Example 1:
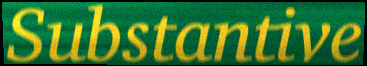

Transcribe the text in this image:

Substantive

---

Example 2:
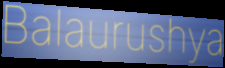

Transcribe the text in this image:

Balaurushya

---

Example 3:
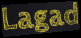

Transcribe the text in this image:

Lagad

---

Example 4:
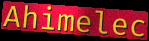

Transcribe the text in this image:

Ahimelec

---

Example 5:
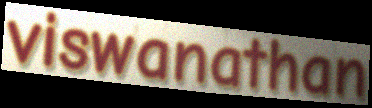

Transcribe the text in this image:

viswanathan